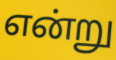
என்று